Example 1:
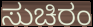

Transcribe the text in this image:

ಸುಚಿರಂ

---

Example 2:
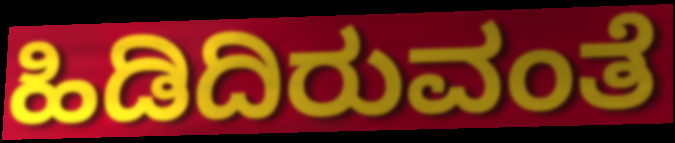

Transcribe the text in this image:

ಹಿಡಿದಿರುವಂತೆ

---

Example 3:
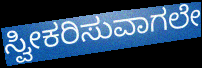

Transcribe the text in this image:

ಸ್ವೀಕರಿಸುವಾಗಲೇ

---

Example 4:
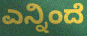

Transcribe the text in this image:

ಎನ್ನಿಂದೆ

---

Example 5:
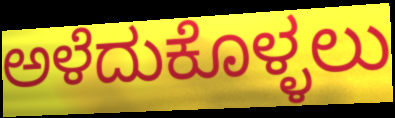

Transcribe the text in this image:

ಅಳೆದುಕೊಳ್ಳಲು